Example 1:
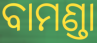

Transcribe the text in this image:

ବାମଣ୍ଡା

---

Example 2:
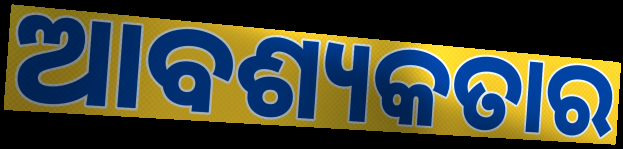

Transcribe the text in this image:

ଆବଶ୍ୟକତାର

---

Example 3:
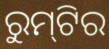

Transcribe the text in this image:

ରୁମ୍‌ଟିର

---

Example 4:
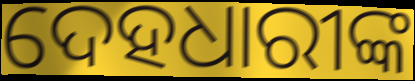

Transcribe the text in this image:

ଦେହଧାରୀଙ୍କ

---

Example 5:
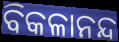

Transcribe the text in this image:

ବିକଳାନନ୍ଦ